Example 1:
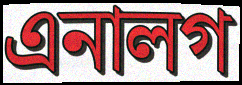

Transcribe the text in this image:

এনালগ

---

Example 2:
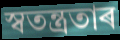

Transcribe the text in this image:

স্বতন্ত্ৰতাৰ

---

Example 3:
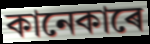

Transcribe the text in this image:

কানেকাৰে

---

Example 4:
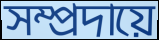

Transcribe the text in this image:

সম্প্ৰদায়ে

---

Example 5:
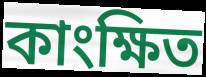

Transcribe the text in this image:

কাংক্ষিত